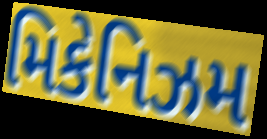
મિકેનિઝમ